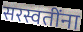
सरस्वतींना